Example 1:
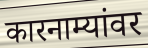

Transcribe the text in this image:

कारनाम्यांवर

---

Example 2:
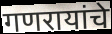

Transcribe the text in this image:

गणरायांचे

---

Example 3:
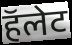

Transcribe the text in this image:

हॅलेट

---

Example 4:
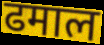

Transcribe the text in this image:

ढमाल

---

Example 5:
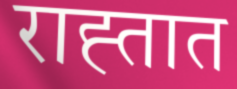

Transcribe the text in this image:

राह्तात